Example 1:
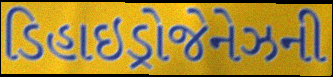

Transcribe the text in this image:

ડિહાઇડ્રોજેનેઝની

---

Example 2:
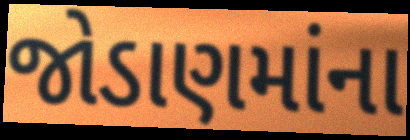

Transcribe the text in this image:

જોડાણમાંના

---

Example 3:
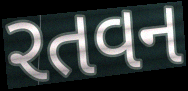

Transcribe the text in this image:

રતવન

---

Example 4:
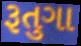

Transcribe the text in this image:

રૂતુગા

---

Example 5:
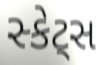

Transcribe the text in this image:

સ્કેટ્સ